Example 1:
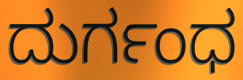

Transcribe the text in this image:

ದುರ್ಗಂಧ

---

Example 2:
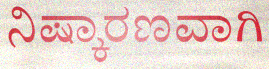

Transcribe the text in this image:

ನಿಷ್ಕಾರಣವಾಗಿ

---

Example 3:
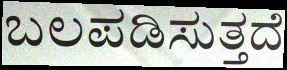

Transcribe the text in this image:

ಬಲಪಡಿಸುತ್ತದೆ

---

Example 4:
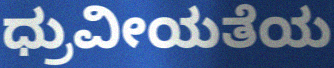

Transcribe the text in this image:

ಧ್ರುವೀಯತೆಯ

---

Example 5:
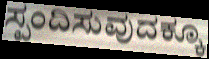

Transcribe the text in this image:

ಸ್ಪಂದಿಸುವುದಕ್ಕೂ